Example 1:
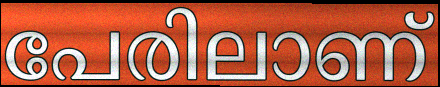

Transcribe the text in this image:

പേരിലാണ്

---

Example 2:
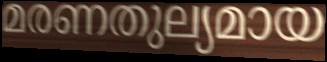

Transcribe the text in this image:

മരണതുല്യമായ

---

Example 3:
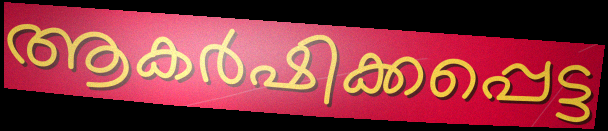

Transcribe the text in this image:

ആകർഷിക്കപ്പെട്ട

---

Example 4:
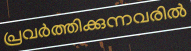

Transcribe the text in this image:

പ്രവർത്തിക്കുന്നവരിൽ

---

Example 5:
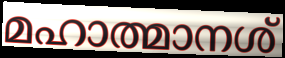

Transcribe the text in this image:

മഹാത്മാനശ്